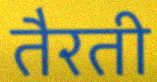
तैरती